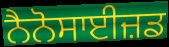
ਨੈਨੋਸਾਈਜ਼ਡ